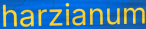
harzianum